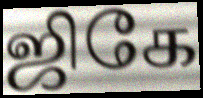
ஜிகே